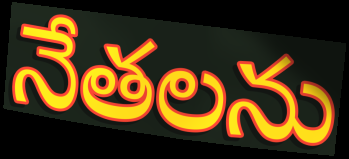
నేతలను